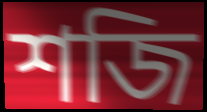
শজি